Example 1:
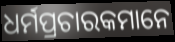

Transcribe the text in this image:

ଧର୍ମପ୍ରଚାରକମାନେ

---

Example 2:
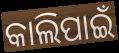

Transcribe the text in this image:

କାଲିପାଇଁ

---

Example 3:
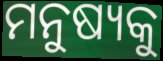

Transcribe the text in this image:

ମନୁଷ୍ୟକୁ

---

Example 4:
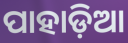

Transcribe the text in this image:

ପାହାଡ଼ିଆ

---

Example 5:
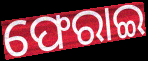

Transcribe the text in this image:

ଫେରାଇ